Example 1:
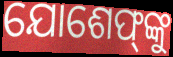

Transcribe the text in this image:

ଯୋଶେଫ୍‌ଙ୍କୁ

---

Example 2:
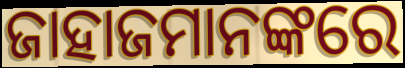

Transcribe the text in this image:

ଜାହାଜମାନଙ୍କରେ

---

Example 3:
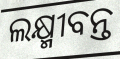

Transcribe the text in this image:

ଲକ୍ଷ୍ମୀବନ୍ତ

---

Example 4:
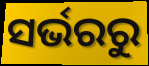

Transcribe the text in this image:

ସର୍ଭରରୁ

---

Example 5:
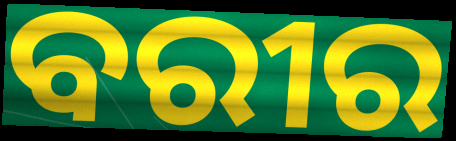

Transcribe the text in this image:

ବରୀର